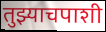
तुझ्याचपाशी